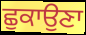
ਛੁਕਾਉਣਾ